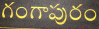
గంగాపురం